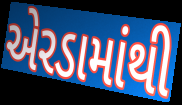
એરડામાંથી